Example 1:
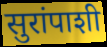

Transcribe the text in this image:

सुरांपाशी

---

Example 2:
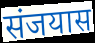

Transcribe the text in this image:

संजयास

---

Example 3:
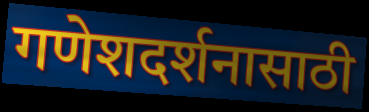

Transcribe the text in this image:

गणेशदर्शनासाठी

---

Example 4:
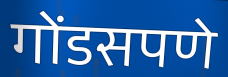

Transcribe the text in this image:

गोंडसपणे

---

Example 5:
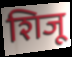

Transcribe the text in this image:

शिजू